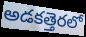
అడకత్తెరలో